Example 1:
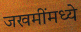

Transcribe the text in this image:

जखमींमध्ये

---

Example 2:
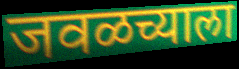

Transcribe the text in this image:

जवळच्याला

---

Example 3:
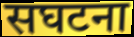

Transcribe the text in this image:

सघटना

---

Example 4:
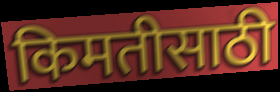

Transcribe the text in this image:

किमतीसाठी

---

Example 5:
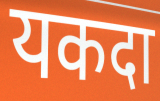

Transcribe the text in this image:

यकदा